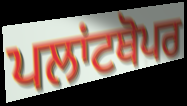
ਪਲਾਂਟਥੋਪਰ